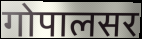
गोपालसर